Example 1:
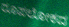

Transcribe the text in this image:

ರೂಪಲೋಕದ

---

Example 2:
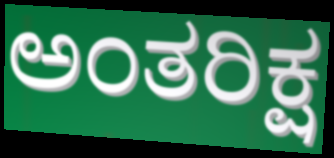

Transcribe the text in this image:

ಅಂತರಿಕ್ಷ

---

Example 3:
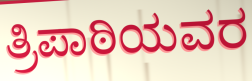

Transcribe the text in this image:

ತ್ರಿಪಾಠಿಯವರ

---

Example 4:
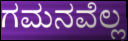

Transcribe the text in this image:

ಗಮನವೆಲ್ಲ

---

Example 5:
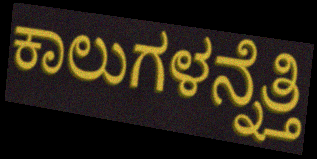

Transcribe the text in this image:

ಕಾಲುಗಳನ್ನೆತ್ತಿ